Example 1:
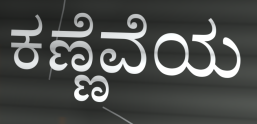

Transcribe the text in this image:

ಕಣ್ಣೆವೆಯ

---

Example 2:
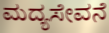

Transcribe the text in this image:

ಮದ್ಯಸೇವನೆ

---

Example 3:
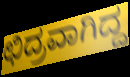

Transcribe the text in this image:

ಛಿದ್ರವಾಗಿದ್ದ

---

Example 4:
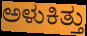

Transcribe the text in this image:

ಅಳುಕಿತ್ತು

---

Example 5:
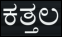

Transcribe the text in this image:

ಕತ್ತಲ